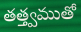
తత్త్వముతో